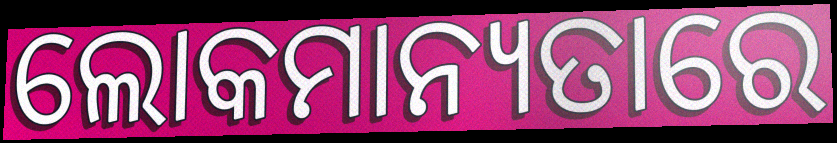
ଲୋକମାନ୍ୟତାରେ